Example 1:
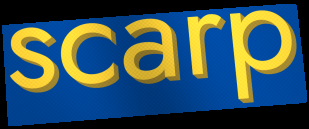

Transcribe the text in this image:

scarp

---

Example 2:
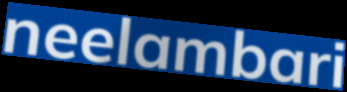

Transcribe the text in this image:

neelambari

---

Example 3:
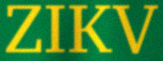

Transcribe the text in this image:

ZIKV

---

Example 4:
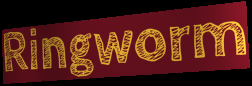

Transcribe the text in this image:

Ringworm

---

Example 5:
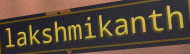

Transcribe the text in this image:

lakshmikanth